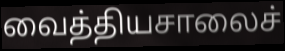
வைத்தியசாலைச்